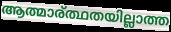
ആത്മാര്ത്ഥതയില്ലാത്ത